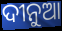
ଦୀନୁଆ